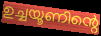
ഉച്ചയൂണിന്റെ